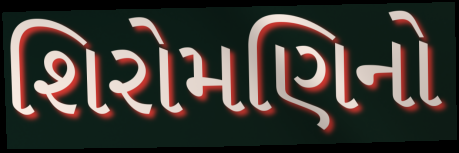
શિરોમણિનો